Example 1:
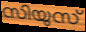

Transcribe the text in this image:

സിയുസ്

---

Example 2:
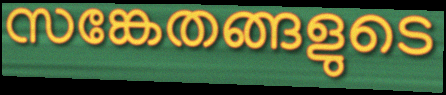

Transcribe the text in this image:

സങ്കേതങ്ങളുടെ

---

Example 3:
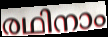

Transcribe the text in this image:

രഥിനാം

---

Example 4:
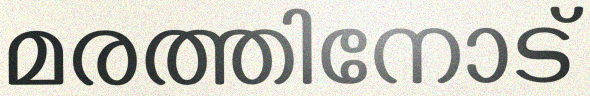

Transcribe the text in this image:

മരത്തിനോട്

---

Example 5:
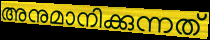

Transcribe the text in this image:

അനുമാനിക്കുന്നത്